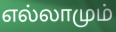
எல்லாமும்